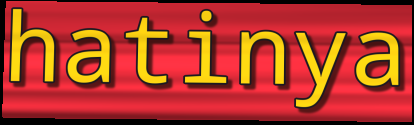
hatinya